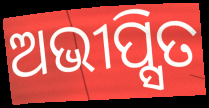
ଅଭୀପ୍ସିତ